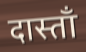
दास्ताँ